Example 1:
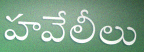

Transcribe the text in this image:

హవేలీలు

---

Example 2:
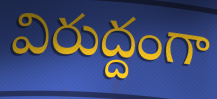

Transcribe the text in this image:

విరుద్దంగా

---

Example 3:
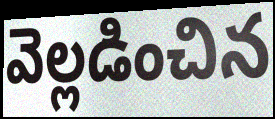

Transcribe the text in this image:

వెల్లడించిన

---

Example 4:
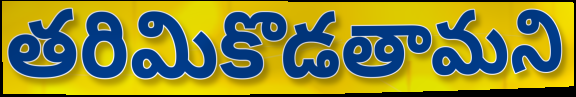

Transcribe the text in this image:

తరిమికొడతామని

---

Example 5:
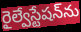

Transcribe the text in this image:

రైల్వేస్టేషన్‌ను